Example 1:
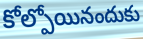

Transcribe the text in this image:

కోల్పోయినందుకు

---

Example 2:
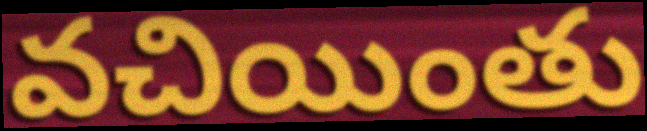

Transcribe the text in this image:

వచియింతు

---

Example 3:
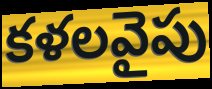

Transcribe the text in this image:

కళలవైపు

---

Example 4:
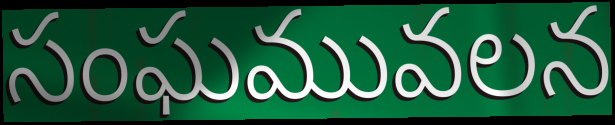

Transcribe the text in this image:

సంఘమువలన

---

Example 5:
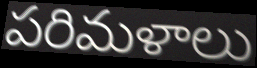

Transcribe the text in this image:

పరిమళాలు